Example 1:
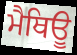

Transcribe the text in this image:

ਮੈਥਿਊ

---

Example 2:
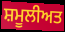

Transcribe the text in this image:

ਸ਼ਮੂਲੀਅਤ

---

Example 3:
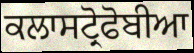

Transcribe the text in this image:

ਕਲਾਸਟ੍ਰੋਫੋਬੀਆ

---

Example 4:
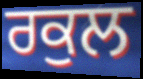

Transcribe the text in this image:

ਰਕੁਲ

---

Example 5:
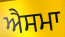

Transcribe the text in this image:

ਐਸਮਾ